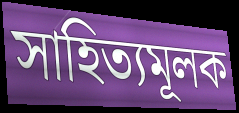
সাহিত্যমূলক